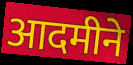
आदमीने